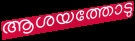
ആശയത്തോടു